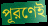
পূরণেই